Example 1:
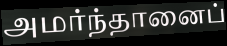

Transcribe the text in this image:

அமர்ந்தானைப்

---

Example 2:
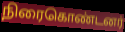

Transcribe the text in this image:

நிரைகொண்டனர்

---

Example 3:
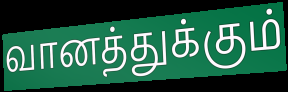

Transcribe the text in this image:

வானத்துக்கும்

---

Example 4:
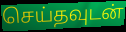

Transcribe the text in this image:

செய்தவுடன்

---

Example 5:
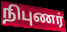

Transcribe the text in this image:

நிபுணர்